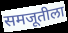
समजूतीला